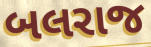
બલરાજ